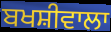
ਬਖਸ਼ੀਵਾਲਾ